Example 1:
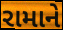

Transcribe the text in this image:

રામાને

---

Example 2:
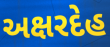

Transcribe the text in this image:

અક્ષરદેહ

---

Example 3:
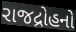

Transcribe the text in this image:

રાજદ્રોહનો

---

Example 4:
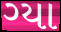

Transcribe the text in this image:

ગ્યા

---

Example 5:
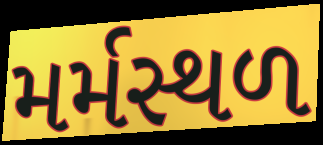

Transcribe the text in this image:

મર્મસ્થળ